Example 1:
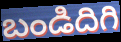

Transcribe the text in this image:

బండిదిగి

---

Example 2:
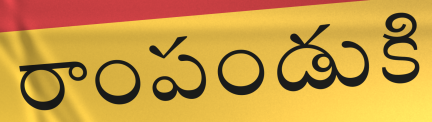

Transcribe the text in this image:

రాంపండుకి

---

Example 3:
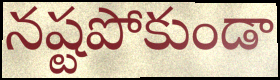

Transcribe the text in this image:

నష్టపోకుండా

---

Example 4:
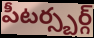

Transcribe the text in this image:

పీటర్స్బర్గ్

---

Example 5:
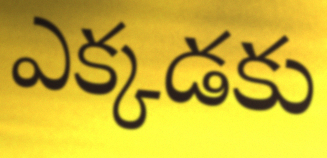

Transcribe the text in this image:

ఎక్కడకు